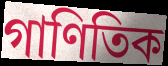
গাণিতিক